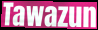
Tawazun